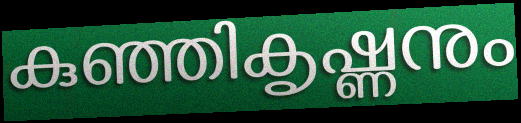
കുഞ്ഞികൃഷ്ണനും